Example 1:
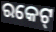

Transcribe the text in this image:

ରକେଟ୍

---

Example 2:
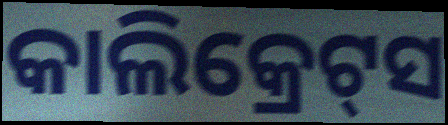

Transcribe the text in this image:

କାଲିକ୍ରେଟ୍‍ସ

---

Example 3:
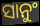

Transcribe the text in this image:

ସାନୁଂ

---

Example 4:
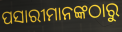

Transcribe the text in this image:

ପସାରୀମାନଙ୍କଠାରୁ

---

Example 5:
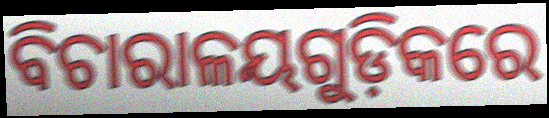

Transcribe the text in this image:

ବିଚାରାଳୟଗୁଡ଼ିକରେ